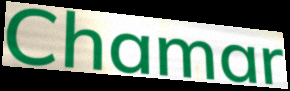
Chamar